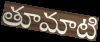
తూమాటి